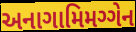
અનાગામિમગ્ગેન